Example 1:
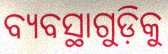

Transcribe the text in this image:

ବ୍ୟବସ୍ଥାଗୁଡ଼ିକୁ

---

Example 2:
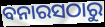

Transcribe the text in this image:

ବନାରସଠାରୁ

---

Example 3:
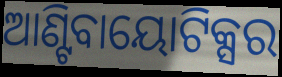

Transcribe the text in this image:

ଆଣ୍ଟିବାୟୋଟିକ୍ସର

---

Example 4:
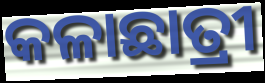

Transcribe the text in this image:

କଳାଛାତ୍ରୀ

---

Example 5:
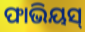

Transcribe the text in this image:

ଫାଭିୟସ୍